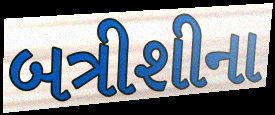
બત્રીશીના